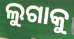
ଲୁଗାକୁ